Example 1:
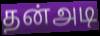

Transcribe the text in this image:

தன்அடி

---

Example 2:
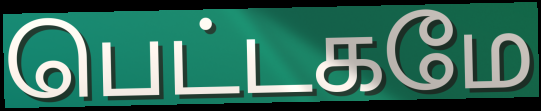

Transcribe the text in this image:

பெட்டகமே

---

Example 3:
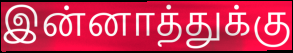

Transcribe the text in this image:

இன்னாத்துக்கு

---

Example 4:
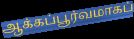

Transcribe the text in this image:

ஆக்கப்பூர்வமாகப்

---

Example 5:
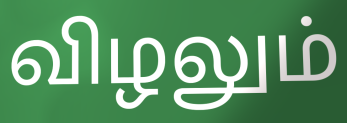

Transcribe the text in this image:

விழலும்